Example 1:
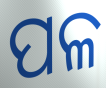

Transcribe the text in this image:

ପଳ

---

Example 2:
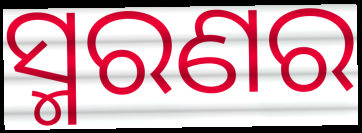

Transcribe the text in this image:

ସ୍ମରଣର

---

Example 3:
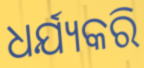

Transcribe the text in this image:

ଧର୍ଯ୍ୟକରି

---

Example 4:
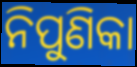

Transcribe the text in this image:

ନିପୁଣିକା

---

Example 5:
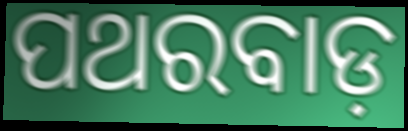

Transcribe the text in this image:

ପଥରବାଡ଼